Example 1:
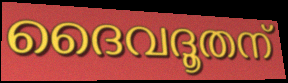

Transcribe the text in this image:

ദൈവദൂതന്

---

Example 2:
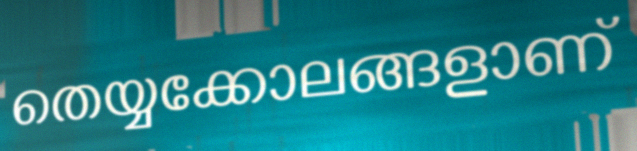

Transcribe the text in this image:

തെയ്യക്കോലങ്ങളാണ്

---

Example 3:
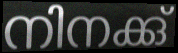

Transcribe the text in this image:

നിനക്കു്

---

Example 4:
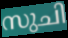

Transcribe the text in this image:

സുചി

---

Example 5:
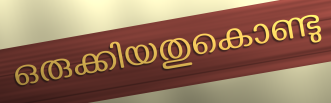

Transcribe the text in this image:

ഒരുക്കിയതുകൊണ്ടു